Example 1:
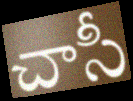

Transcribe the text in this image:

చాసీ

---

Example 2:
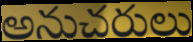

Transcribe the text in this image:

అనుచరులు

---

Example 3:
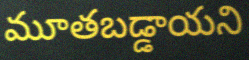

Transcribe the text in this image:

మూతబడ్డాయని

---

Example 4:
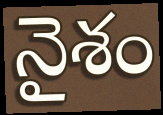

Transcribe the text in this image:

నైశం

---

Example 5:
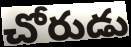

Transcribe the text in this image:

చోరుడు